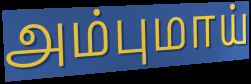
அம்புமாய்